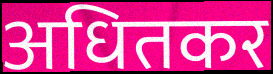
अधितकर